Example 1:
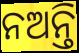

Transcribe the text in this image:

ନଅନ୍ତି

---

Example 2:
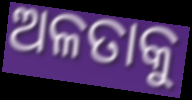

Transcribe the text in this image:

ଅଳତାକୁ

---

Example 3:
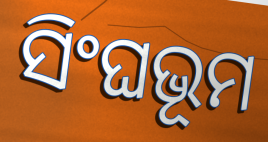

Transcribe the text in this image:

ସିଂଘଭୂମ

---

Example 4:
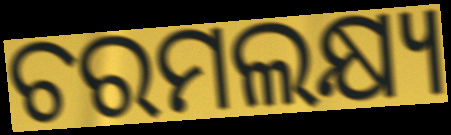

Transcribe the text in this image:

ଚରମଲକ୍ଷ୍ୟ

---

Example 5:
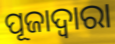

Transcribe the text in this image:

ପୂଜାଦ୍ଵାରା